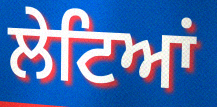
ਲੇਟਿਆਂ